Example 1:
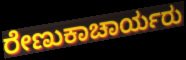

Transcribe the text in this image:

ರೇಣುಕಾಚಾರ್ಯರು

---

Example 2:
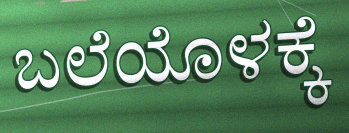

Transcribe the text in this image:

ಬಲೆಯೊಳಕ್ಕೆ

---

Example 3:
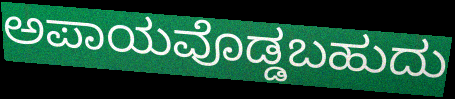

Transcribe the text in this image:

ಅಪಾಯವೊಡ್ಡಬಹುದು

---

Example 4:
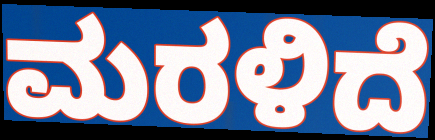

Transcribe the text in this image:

ಮರಳಿದೆ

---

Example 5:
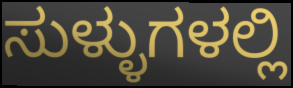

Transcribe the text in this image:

ಸುಳ್ಳುಗಳಲ್ಲಿ